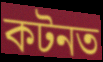
কটনত